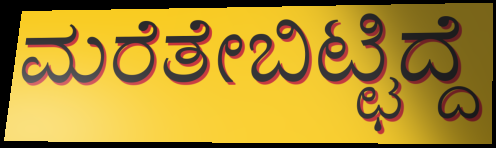
ಮರೆತೇಬಿಟ್ಟಿದ್ದೆ